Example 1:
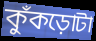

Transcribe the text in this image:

কুঁকড়োটা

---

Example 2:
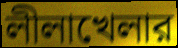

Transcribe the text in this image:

লীলাখেলার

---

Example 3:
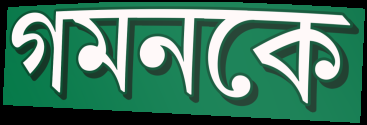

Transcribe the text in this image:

গমনকে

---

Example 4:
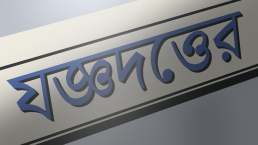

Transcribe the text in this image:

যজ্ঞদত্তের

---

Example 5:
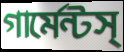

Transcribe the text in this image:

গার্মেন্টস্